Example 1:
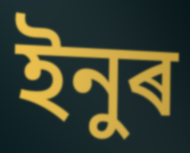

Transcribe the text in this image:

ইনুৰ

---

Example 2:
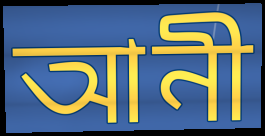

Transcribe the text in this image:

আনী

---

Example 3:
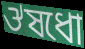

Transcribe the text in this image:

ঔষধো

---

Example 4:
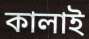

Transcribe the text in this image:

কালাই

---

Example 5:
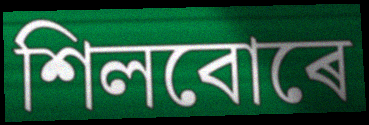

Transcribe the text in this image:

শিলবোৰে